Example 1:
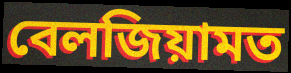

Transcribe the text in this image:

বেলজিয়ামত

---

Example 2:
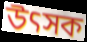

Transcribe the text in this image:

উৎসক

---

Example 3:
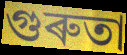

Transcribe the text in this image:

গুৰুতা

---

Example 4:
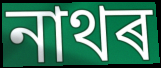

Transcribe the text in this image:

নাথৰ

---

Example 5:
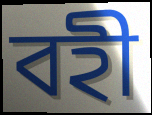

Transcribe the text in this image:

বহী